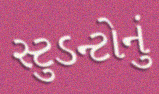
સ્ટુડન્ટોનું